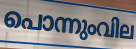
പൊന്നുംവില